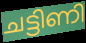
ചട്ടിണി